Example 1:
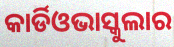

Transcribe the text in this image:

କାର୍ଡିଓଭାସ୍କୁଲାର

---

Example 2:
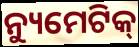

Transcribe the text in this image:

ନ୍ୟୁମେଟିକ୍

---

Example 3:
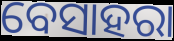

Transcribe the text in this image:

ବେସାହରା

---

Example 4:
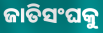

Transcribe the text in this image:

ଜାତିସଂଘକୁ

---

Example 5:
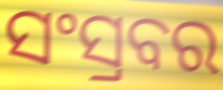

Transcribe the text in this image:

ସଂସ୍ରବର